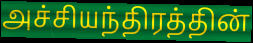
அச்சியந்திரத்தின்